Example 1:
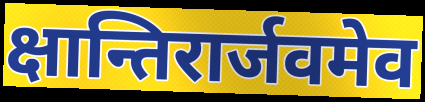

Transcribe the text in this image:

क्षान्तिरार्जवमेव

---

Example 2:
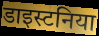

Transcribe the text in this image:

डाइस्टनिया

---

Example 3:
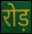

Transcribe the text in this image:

रोड़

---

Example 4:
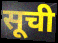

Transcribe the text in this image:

सूची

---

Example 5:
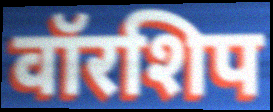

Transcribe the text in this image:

वॉरशिप